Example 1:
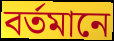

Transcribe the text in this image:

বর্তমানে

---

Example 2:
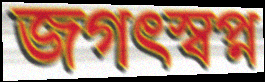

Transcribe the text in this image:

জগৎস্বপ্ন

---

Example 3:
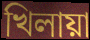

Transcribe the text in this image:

খিলায়া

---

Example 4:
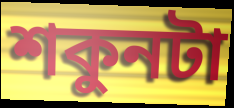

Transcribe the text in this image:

শকুনটা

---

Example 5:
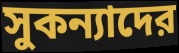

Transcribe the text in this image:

সুকন্যাদের